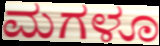
ಮಗಳೂ